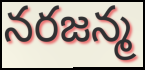
నరజన్మ